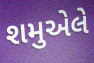
શમુએલે